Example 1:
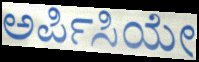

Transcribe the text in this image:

ಅರ್ಪಿಸಿಯೇ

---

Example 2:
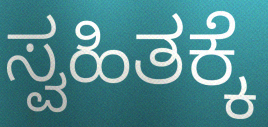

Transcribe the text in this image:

ಸ್ವಹಿತಕ್ಕೆ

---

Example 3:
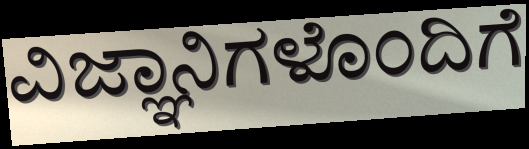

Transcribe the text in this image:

ವಿಜ್ಞಾನಿಗಳೊಂದಿಗೆ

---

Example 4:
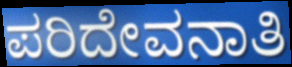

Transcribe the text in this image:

ಪರಿದೇವನಾತಿ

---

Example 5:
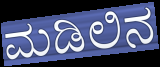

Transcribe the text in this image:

ಮಡಿಲಿನ